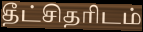
தீட்சிதரிடம்